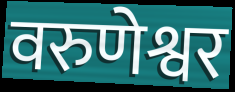
वरुणेश्वर